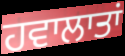
ਹਵਾਲਾਤਾਂ